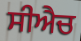
ਸੀਐਚ